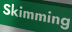
Skimming